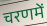
चरणमें